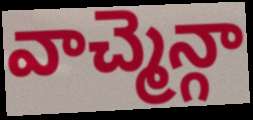
వాచ్మెన్గా